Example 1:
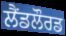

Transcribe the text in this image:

ਲੈਂਡਲੌਰਡ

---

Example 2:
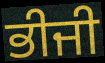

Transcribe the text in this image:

ਭੀਜੀ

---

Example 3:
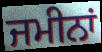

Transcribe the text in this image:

ਜਮੀਨਾਂ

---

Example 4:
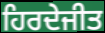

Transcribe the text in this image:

ਹਿਰਦੇਜੀਤ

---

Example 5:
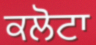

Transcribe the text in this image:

ਕਲੋਟਾ